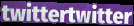
twittertwitter